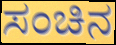
ಸಂಚಿನ